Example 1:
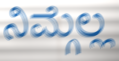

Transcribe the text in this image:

ನಿಮ್ಗೆಲ್ಲ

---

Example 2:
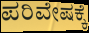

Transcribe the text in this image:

ಪರಿವೇಷಕ್ಕೆ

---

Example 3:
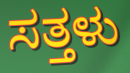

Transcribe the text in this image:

ಸತ್ತಳು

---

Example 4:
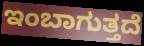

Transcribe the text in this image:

ಇಂಬಾಗುತ್ತದೆ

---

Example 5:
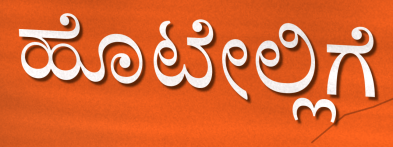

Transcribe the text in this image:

ಹೊಟೇಲ್ಲಿಗೆ